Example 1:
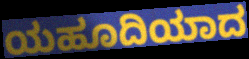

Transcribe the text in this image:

ಯಹೂದಿಯಾದ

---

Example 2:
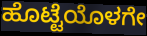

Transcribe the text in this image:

ಹೊಟ್ಟೆಯೊಳಗೇ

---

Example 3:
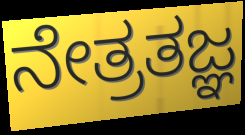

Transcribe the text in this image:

ನೇತ್ರತಜ್ಞ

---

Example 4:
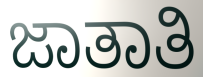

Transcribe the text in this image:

ಜಾತಾತಿ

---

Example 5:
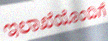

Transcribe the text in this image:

ಇಲಾಖೆಯೊಂದಿಗೆ